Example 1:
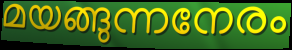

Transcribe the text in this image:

മയങ്ങുന്നനേരം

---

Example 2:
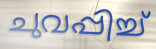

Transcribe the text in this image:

ചുവപ്പിച്ച്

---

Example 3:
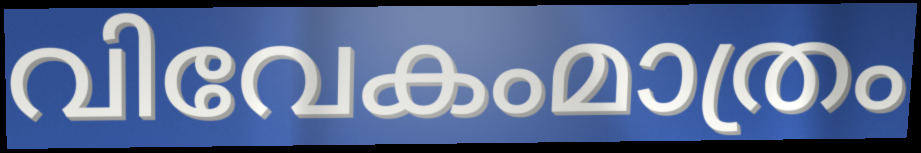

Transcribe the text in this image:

വിവേകംമാത്രം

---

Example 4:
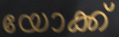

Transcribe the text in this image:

യോക്ക്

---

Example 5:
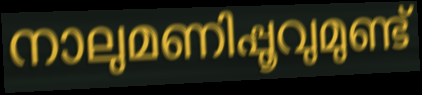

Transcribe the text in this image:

നാലുമണിപ്പൂവുമുണ്ട്